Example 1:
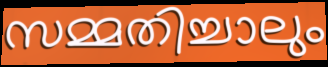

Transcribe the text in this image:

സമ്മതിച്ചാലും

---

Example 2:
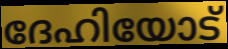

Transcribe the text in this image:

ദേഹിയോട്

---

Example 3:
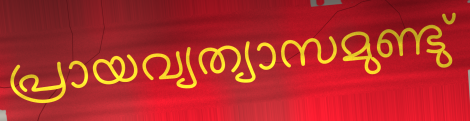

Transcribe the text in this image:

പ്രായവ്യത്യാസമുണ്ടു്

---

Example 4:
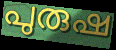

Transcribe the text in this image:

പുരുഷ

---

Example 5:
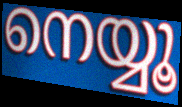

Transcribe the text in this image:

നെയ്യൂ